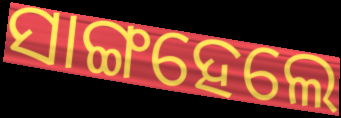
ସାଙ୍ଗହେଲେ